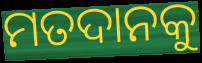
ମତଦାନକୁ